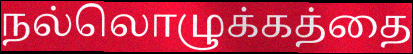
நல்லொழுக்கத்தை